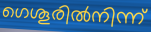
ഗെശൂരിൽനിന്ന്